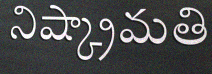
నిష్క్రామతి